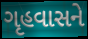
ગૃહવાસને